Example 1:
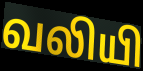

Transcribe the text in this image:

வலியி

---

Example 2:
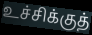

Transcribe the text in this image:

உச்சிக்குத்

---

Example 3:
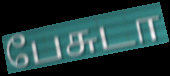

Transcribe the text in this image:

பேசுடா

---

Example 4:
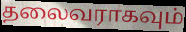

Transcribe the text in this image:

தலைவராகவும்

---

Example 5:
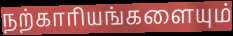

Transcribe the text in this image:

நற்காரியங்களையும்